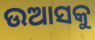
ଉଆସକୁ